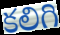
కలిగి